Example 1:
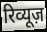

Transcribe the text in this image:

रिव्यूज़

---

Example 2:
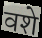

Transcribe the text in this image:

वशे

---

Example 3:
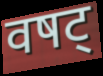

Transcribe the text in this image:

वषट्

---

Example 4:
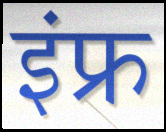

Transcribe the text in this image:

इंफ्र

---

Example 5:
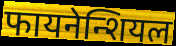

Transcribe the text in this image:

फायनेन्शियल